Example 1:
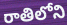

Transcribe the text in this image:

రాతిలోని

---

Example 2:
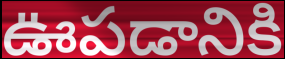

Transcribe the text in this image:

ఊపడానికి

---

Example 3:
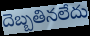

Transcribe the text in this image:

దెబ్బతినలేదు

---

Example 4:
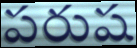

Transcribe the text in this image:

పరుష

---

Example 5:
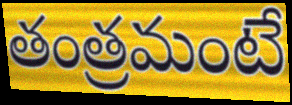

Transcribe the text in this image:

తంత్రమంటే